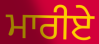
ਮਾਰੀਏ